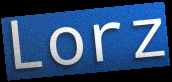
Lorz